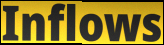
Inflows